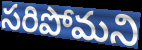
సరిపోమని